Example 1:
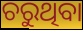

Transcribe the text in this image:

ଚରୁଥିବା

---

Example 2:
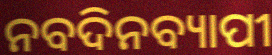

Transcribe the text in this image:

ନବଦିନବ୍ୟାପୀ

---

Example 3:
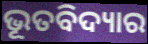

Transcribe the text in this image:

ଭୂତବିଦ୍ୟାର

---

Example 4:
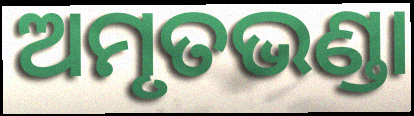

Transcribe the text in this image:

ଅମୃତଭଣ୍ଡା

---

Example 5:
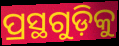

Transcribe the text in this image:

ପ୍ରସ୍ଥଗୁଡ଼ିକୁ